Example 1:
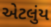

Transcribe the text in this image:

એટલુંય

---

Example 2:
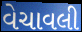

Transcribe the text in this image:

વેચાવલી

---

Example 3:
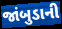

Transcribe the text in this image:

જાંબુડાની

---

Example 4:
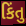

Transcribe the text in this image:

કિંતુ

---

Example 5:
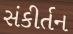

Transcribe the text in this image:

સંકીર્તન